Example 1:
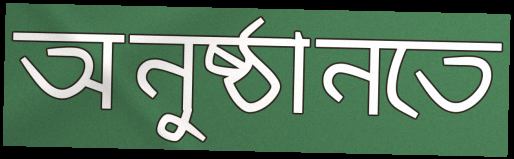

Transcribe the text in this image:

অনুষ্ঠানতে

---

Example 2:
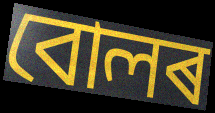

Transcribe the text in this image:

বোলৰ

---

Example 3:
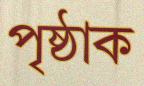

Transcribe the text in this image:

পৃষ্ঠাক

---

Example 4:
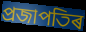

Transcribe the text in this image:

প্ৰজাপতিৰ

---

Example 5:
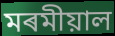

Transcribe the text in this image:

মৰমীয়াল